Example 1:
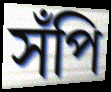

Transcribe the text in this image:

সঁপি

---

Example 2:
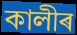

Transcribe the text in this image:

কালীৰ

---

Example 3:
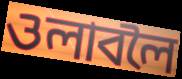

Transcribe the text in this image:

ওলাবলৈ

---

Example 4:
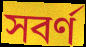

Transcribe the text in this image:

সবৰ্ণ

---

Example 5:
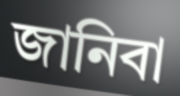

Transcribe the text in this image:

জানিবা